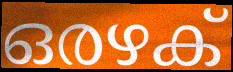
ഒരഴക്